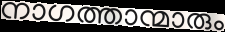
നാഗത്താന്മാരും